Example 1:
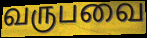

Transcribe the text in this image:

வருபவை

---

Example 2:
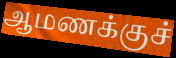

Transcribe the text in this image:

ஆமணக்குச்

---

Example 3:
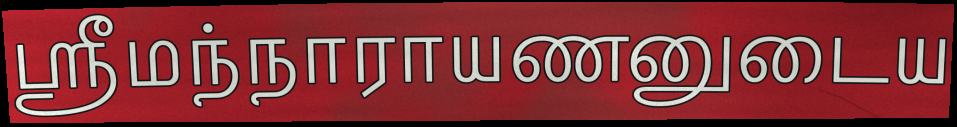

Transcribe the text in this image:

ஸ்ரீமந்நாராயணனுடைய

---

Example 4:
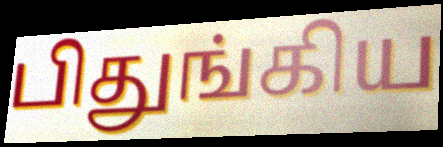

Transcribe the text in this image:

பிதுங்கிய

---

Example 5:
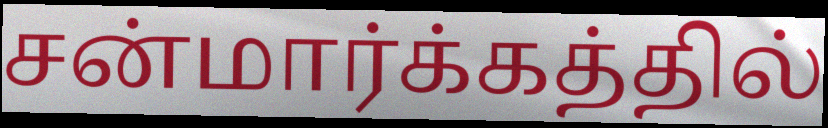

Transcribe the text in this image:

சன்மார்க்கத்தில்